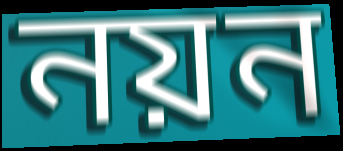
নয়ন